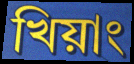
খিয়াং